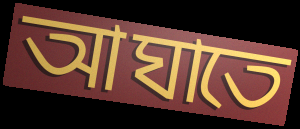
আঘাতে